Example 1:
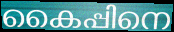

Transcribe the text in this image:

കൈപ്പിനെ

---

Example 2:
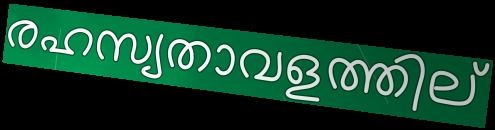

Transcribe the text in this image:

രഹസ്യതാവളത്തില്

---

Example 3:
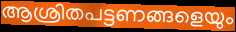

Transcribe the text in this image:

ആശ്രിതപട്ടണങ്ങളെയും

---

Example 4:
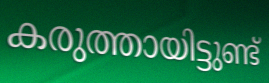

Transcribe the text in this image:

കരുത്തായിട്ടുണ്ട്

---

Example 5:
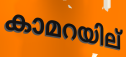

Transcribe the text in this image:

കാമറയില്